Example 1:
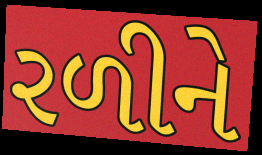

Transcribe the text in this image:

રળીને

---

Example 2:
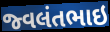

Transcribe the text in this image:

જ્વલંતભાઇ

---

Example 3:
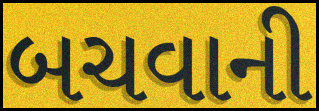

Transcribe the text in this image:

બચવાની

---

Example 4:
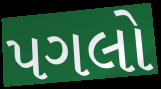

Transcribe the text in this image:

પગલો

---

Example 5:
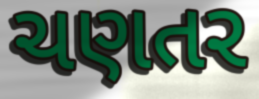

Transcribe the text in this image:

ચણતર